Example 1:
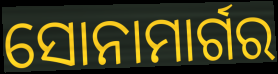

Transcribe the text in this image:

ସୋନାମାର୍ଗର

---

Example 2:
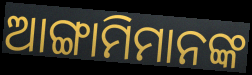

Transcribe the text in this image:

ଆଙ୍ଗାମିମାନଙ୍କ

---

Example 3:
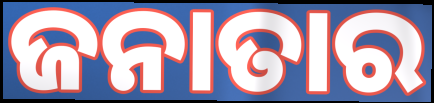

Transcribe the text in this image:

ଜନାତାର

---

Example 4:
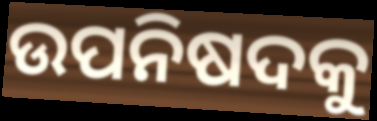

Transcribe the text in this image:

ଉପନିଷଦକୁ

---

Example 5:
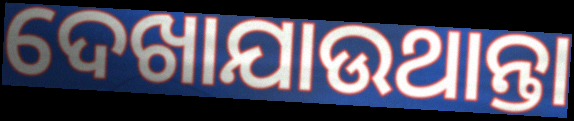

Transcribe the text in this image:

ଦେଖାଯାଉଥାନ୍ତା